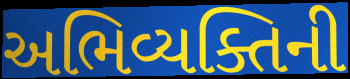
અભિવ્યક્તિની